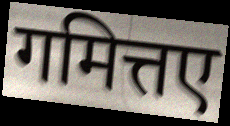
गमित्तए